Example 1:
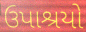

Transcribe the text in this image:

ઉપાશ્રયો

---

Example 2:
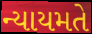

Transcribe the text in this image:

ન્યાયમતે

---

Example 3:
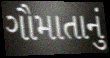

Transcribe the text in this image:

ગૌમાતાનું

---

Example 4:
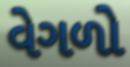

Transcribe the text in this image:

વેગળો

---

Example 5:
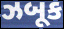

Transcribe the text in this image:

ઝબૂક